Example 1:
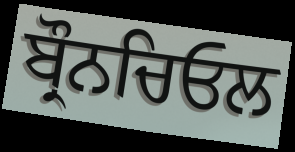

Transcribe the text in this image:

ਬ੍ਰੌਨਚਿਓਲ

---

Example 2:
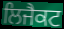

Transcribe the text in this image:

ਲਿਜੈਕਟ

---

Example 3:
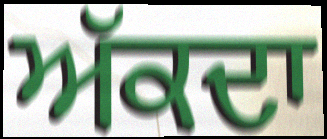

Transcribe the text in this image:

ਅੱਕਦਾ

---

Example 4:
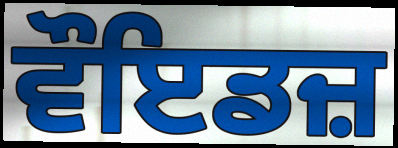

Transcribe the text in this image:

ਵੌਇਡਜ਼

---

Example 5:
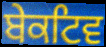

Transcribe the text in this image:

ਬੇਕਟਿਵ